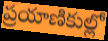
ప్రయాణికుల్లో